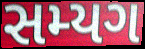
સમ્યગ